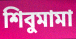
শিবুমামা